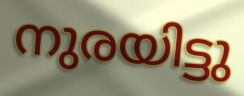
നുരയിട്ടു